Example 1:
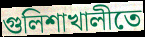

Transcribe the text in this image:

গুলিশাখালীতে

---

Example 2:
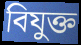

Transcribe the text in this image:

বিযুক্ত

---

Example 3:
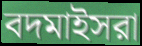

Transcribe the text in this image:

বদমাইসরা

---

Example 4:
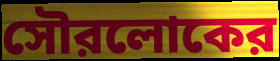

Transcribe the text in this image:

সৌরলোকের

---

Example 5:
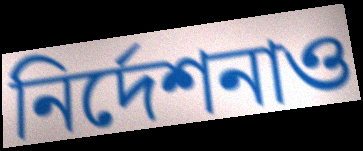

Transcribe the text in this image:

নির্দেশনাও